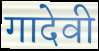
गादेवी